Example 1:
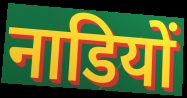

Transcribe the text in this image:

नाडियों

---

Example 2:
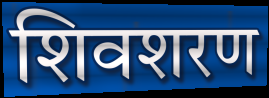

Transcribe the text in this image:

शिवशरण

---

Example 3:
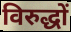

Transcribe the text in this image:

विरुद्धों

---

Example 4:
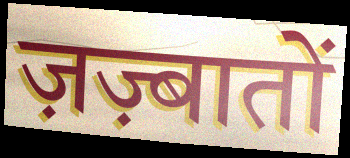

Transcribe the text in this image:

ज़ज़्बातों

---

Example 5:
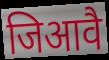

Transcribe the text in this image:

जिआवै